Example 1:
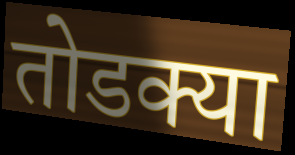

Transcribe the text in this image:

तोडक्या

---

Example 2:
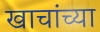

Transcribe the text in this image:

खाचांच्या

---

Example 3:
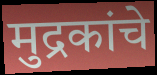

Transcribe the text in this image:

मुद्रकांचे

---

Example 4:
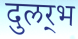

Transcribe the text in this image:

दुलर्भ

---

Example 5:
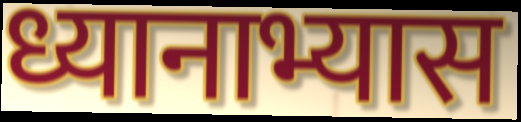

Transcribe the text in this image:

ध्यानाभ्यास